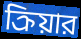
ক্রিয়ার